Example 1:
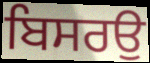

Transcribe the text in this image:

ਬਿਸਰਉ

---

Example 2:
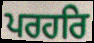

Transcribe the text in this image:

ਪਰਹਰਿ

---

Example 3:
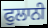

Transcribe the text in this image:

ਫੁਲਾਨੀ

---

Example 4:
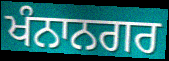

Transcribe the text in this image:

ਖੰਨਾਨਗਰ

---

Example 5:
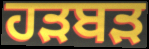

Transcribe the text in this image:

ਹੜਬੜ